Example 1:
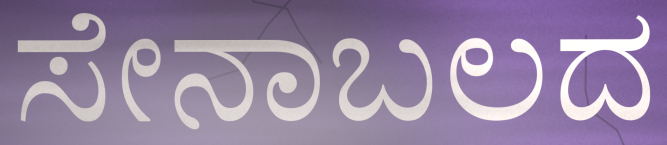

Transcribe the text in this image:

ಸೇನಾಬಲದ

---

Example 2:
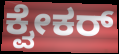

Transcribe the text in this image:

ಕ್ವೇಕರ್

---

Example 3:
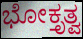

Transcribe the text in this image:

ಭೋಕ್ತೃತ್ವ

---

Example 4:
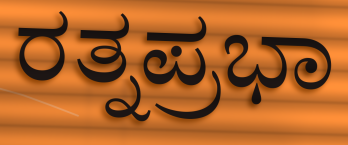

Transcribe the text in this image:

ರತ್ನಪ್ರಭಾ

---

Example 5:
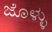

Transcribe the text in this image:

ಜೊಳ್ಳು